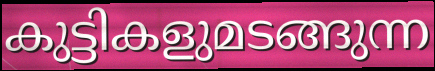
കുട്ടികളുമടങ്ങുന്ന